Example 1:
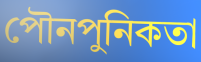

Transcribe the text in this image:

পৌনপুনিকতা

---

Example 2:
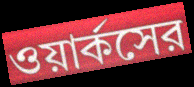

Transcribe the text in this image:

ওয়ার্কসের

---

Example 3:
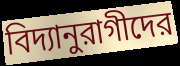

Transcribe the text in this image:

বিদ্যানুরাগীদের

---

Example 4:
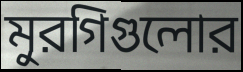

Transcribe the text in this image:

মুরগিগুলোর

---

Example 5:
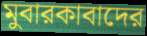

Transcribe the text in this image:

মুবারকাবাদের